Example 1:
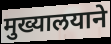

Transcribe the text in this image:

मुख्यालयाने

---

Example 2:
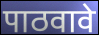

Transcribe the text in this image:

पाठवावे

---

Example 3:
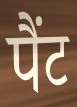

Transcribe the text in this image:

पैंट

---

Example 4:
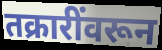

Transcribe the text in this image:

तक्रारींवरून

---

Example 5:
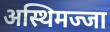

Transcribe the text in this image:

अस्थिमज्जा